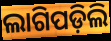
ଲାଗିପଡ଼ିଲି